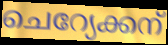
ചെറ്യേക്കന്